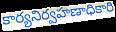
కార్యనిర్వహణాధికారి